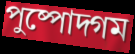
পুষ্পোদ্গম